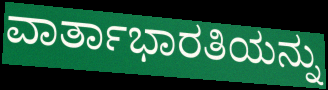
ವಾರ್ತಾಭಾರತಿಯನ್ನು